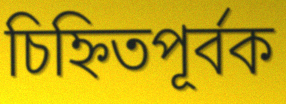
চিহ্নিতপূর্বক